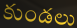
కుండలు